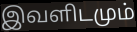
இவளிடமும்